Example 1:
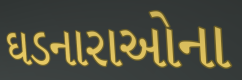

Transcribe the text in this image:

ઘડનારાઓના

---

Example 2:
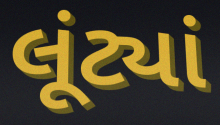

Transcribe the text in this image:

લૂંટ્યાં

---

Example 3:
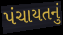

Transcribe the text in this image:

પંચાયતનું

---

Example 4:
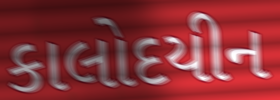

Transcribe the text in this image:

કાલોદયીન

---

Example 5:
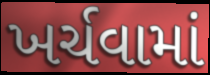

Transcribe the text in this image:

ખર્ચવામાં